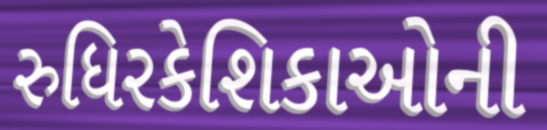
રુધિરકેશિકાઓની